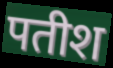
पतीश